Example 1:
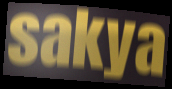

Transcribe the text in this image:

sakya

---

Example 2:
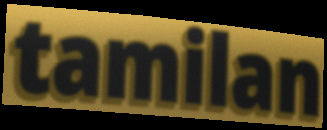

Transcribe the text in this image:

tamilan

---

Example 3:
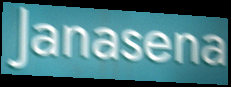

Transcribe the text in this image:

Janasena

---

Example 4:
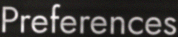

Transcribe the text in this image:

Preferences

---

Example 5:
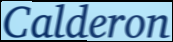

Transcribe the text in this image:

Calderon